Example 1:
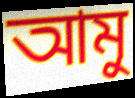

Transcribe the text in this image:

আমু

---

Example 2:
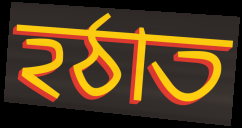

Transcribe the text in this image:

হঠাত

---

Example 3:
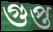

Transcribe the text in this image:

গুপ্ত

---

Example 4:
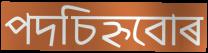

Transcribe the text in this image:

পদচিহ্নবোৰ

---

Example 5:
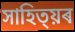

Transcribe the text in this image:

সাহিত্য়ৰ